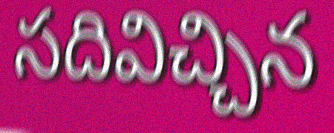
సదివిచ్చిన